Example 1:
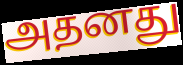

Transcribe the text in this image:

அதனது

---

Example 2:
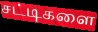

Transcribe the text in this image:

சட்டிகளை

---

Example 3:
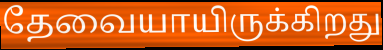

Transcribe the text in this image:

தேவையாயிருக்கிறது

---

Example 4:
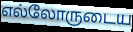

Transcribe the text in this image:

எல்லோருடைய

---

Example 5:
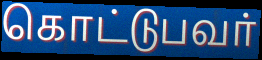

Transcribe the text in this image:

கொட்டுபவர்